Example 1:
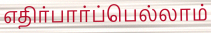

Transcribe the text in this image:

எதிர்பார்ப்பெல்லாம்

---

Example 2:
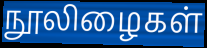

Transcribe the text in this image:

நூலிழைகள்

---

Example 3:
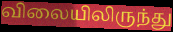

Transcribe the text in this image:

விலையிலிருந்து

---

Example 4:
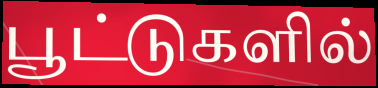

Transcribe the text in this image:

பூட்டுகளில்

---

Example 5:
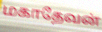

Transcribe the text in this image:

மகாதேவன்